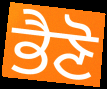
ਭੈਣੋ